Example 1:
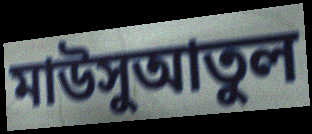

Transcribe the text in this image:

মাউসুআতুল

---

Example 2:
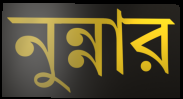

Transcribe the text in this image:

নুন্নার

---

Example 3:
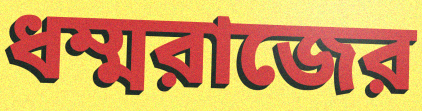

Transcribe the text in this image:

ধম্মরাজের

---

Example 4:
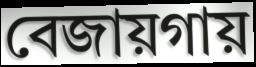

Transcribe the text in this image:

বেজায়গায়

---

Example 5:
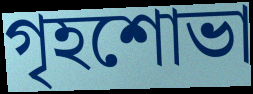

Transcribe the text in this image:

গৃহশোভা